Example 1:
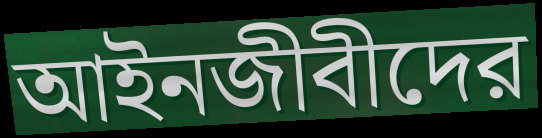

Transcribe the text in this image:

আইনজীবীদের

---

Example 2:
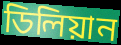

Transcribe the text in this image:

ডিলিয়ান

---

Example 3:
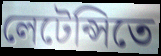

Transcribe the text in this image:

লেটেন্সিতে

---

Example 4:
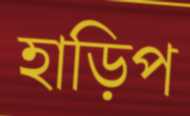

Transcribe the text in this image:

হাড়িপ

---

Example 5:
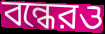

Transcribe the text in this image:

বন্ধেরও